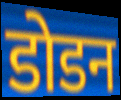
डोडन